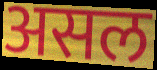
असल